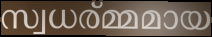
സ്വധര്മ്മമായ